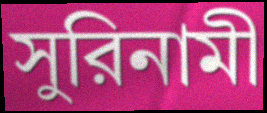
সুরিনামী